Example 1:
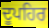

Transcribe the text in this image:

ਦੂਪਹਿਰ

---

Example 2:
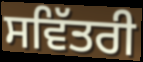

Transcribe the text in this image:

ਸਵਿੱਤਰੀ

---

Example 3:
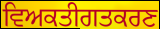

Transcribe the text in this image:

ਵਿਅਕਤੀਗਤਕਰਣ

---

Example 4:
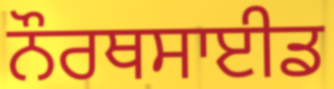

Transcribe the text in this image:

ਨੌਰਥਸਾਈਡ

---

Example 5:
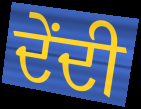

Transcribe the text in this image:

ਦੇਂਦੀ